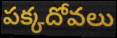
పక్కదోవలు